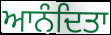
ਆਨੰਦਿਤਾ